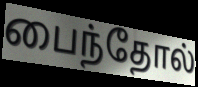
பைந்தோல்